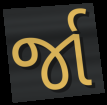
ર્જા